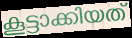
കൂട്ടാക്കിയത്